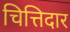
चित्तिदार